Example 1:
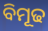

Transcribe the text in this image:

ବିମୂଢ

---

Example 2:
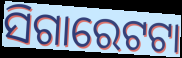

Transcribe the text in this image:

ସିଗାରେଟଟା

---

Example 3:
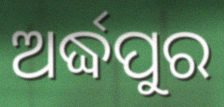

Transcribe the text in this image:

ଅର୍ଦ୍ଧପୁର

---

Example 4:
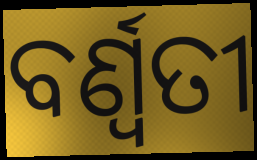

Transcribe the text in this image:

ବର୍ଣ୍ବତୀ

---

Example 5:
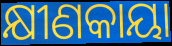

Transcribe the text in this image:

କ୍ଷୀଣକାୟା